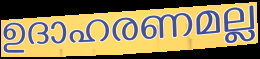
ഉദാഹരണമല്ല